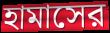
হামাসের